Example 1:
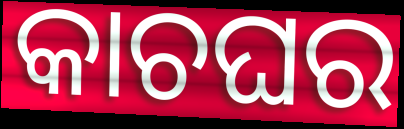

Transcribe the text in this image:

କାଚଘର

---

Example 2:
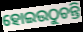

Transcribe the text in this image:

ହୋଇଉଠୁଚନ୍ତି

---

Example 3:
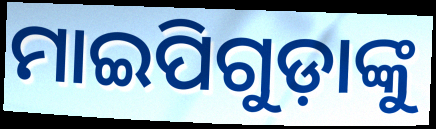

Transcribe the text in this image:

ମାଇପିଗୁଡ଼ାଙ୍କୁ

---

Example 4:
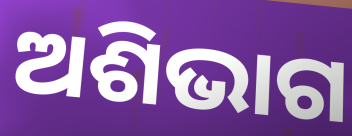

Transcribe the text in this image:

ଅଶିଭାଗ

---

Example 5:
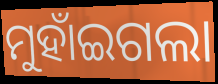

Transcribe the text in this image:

ମୁହାଁଇଗଲା